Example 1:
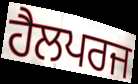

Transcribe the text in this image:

ਹੈਲਪਰਜ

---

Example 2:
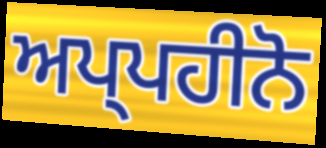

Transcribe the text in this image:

ਅਪ੍ਪਹੀਨੋ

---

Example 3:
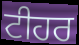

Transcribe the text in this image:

ਟੀਹਰ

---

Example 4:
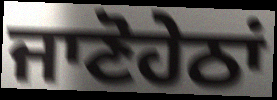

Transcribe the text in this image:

ਜਾਣੋਹੇਠਾਂ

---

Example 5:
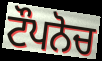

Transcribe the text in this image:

ਟੌਪਨੋਚ